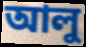
আলু